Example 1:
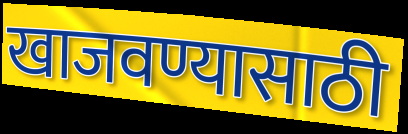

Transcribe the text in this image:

खाजवण्यासाठी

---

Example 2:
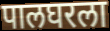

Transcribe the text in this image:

पालघरला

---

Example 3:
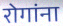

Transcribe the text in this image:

रोगांना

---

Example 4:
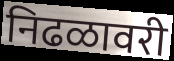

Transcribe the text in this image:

निढळावरी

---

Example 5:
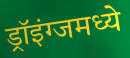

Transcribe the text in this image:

ड्रॉइंग्जमध्ये